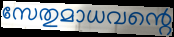
സേതുമാധവന്റെ